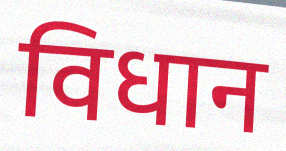
विधान